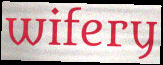
wifery